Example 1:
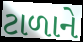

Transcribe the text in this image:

ટાળાને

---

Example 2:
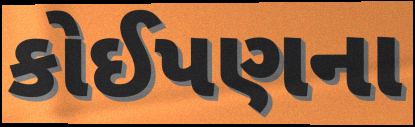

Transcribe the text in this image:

કોઈપણના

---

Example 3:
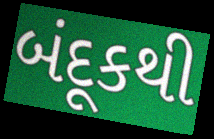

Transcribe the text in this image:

બંદૂકથી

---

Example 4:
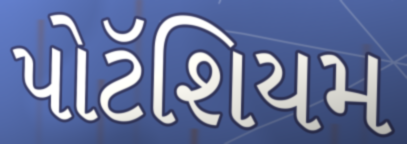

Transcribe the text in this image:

પોટૅશિયમ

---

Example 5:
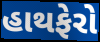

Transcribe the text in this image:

હાથફેરો